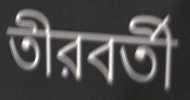
তীরবর্তী